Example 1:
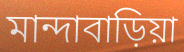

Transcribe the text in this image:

মান্দাবাড়িয়া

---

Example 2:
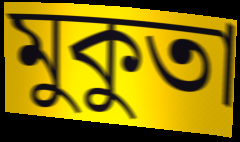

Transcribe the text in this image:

মুকুতা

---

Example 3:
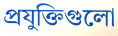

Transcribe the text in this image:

প্রযুক্তিগুলো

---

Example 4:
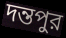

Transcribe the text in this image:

দন্তপুর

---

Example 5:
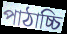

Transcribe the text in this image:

পাঠাচ্চি